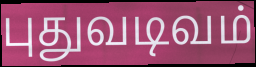
புதுவடிவம்